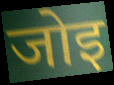
जोइ